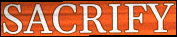
SACRIFY